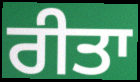
ਰੀਤਾ